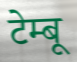
टेम्बू